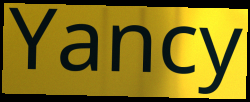
Yancy